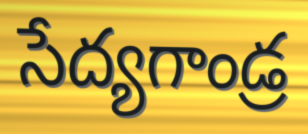
సేద్యగాండ్ర